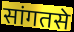
सांगतसे